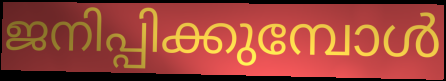
ജനിപ്പിക്കുമ്പോൾ